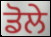
ਡੋਲੇ